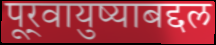
पूर्वायुष्याबद्दल